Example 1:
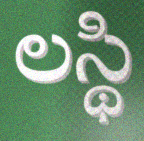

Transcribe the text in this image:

లస్థి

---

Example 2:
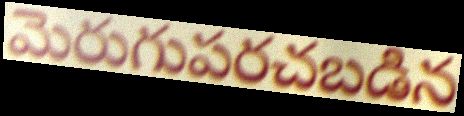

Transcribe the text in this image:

మెరుగుపరచబడిన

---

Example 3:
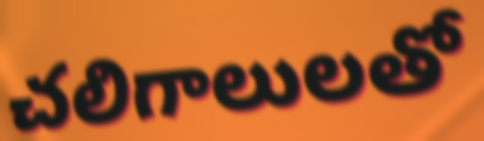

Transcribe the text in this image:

చలిగాలులతో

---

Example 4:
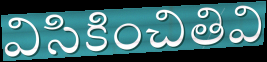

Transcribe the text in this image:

విసికించితివి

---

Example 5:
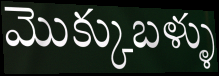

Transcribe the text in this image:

మొక్కుబళ్ళు